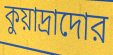
কুয়াদ্রাদোর